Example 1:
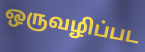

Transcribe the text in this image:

ஒருவழிப்பட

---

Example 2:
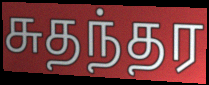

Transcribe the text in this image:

சுதந்தர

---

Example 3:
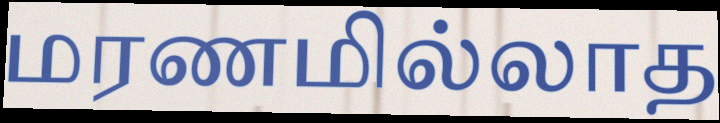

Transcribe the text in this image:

மரணமில்லாத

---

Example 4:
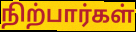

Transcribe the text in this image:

நிற்பார்கள்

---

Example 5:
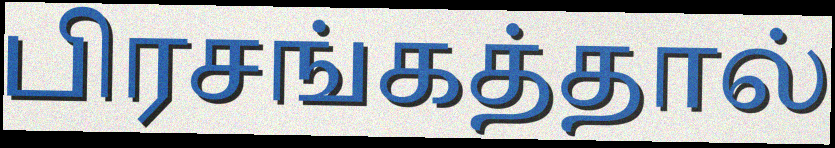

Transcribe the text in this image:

பிரசங்கத்தால்